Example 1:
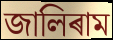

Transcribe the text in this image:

জালিৰাম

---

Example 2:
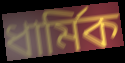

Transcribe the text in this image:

ধাৰ্মিক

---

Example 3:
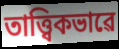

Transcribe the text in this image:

তাত্ত্বিকভাৱে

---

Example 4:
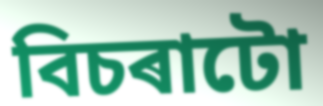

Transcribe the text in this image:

বিচৰাটো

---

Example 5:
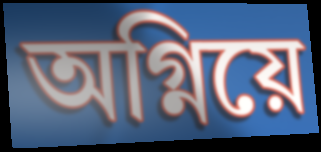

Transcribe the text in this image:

অগ্নিয়ে